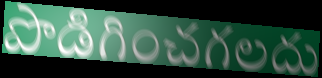
పొడిగించగలదు